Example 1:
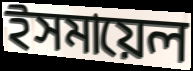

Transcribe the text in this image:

ইসমায়েল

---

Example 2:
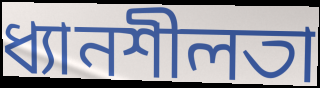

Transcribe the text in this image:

ধ্যানশীলতা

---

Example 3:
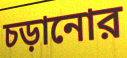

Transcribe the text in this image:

চড়ানোর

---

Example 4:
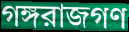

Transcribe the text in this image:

গঙ্গরাজগণ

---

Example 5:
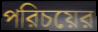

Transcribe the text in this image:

পরিচয়ের